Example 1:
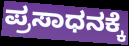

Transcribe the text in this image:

ಪ್ರಸಾಧನಕ್ಕೆ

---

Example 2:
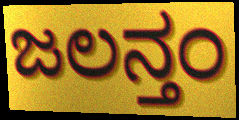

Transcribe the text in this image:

ಜಲನ್ತಂ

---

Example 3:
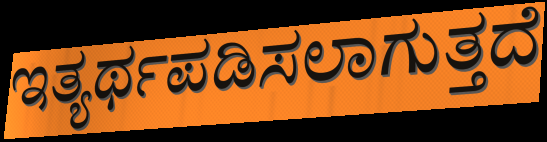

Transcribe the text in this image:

ಇತ್ಯರ್ಥಪಡಿಸಲಾಗುತ್ತದೆ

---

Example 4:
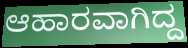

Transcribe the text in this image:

ಆಹಾರವಾಗಿದ್ದ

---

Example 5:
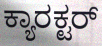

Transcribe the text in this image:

ಕ್ಯಾರಕ್ಟರ್